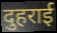
दुहराई